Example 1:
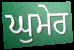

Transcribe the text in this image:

ਘੁਮੇਰ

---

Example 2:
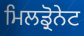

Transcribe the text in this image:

ਮਿਲਡ੍ਰੋਨੇਟ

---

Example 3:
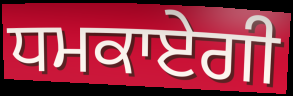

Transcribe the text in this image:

ਧਮਕਾਏਗੀ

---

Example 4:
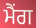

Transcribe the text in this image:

ਮੈਂਗ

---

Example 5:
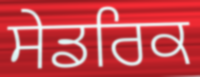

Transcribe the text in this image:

ਸੇਡਰਿਕ